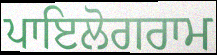
ਪਾਇਲੋਗਰਾਮ